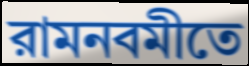
রামনবমীতে